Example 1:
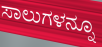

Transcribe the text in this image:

ಸಾಲುಗಳನ್ನೂ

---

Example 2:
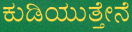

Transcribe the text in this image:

ಕುಡಿಯುತ್ತೇನೆ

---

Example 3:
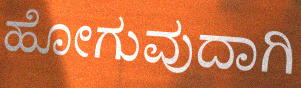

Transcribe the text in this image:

ಹೋಗುವುದಾಗಿ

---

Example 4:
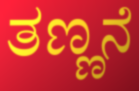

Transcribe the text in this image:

ತಣ್ಣನೆ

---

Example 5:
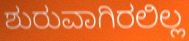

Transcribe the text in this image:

ಶುರುವಾಗಿರಲಿಲ್ಲ